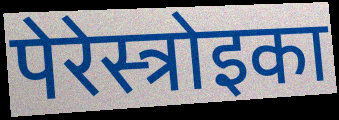
पेरेस्त्रोइका